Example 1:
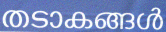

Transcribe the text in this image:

തടാകങ്ങൾ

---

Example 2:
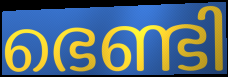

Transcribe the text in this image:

ഭെണ്ടി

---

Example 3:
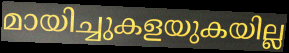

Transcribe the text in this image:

മായിച്ചുകളയുകയില്ല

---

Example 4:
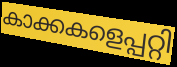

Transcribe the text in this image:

കാക്കകളെപ്പറ്റി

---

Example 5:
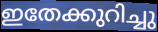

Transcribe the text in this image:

ഇതേക്കുറിച്ചു